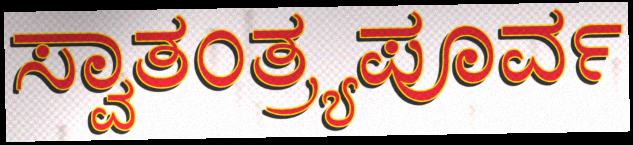
ಸ್ವಾತಂತ್ರ್ಯಪೂರ್ವ